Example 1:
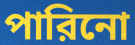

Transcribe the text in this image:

পারিনো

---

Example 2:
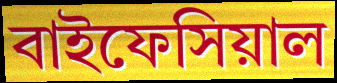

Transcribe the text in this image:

বাইফেসিয়াল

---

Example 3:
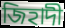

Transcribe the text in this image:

জিহাদী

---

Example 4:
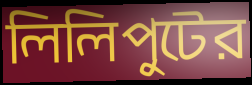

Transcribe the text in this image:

লিলিপুটের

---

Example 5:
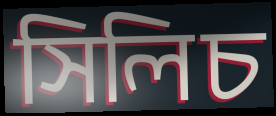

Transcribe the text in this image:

সিলিচ